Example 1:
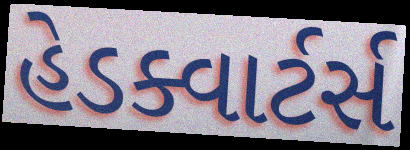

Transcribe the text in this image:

હેડક્વાર્ટર્સ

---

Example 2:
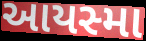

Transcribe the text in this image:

આયસ્મા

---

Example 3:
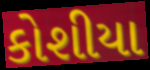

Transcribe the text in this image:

કોશીયા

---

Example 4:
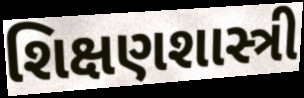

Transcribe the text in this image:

શિક્ષણશાસ્ત્રી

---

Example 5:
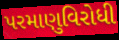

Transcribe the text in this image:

પરમાણુવિરોધી